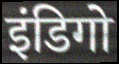
इंडिगो